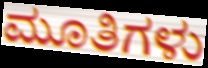
ಮೂತಿಗಳು